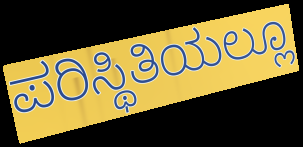
ಪರಿಸ್ಥಿತಿಯಲ್ಲೂ